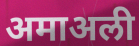
अमाअली